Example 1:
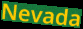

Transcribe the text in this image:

Nevada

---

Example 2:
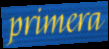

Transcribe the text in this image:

primera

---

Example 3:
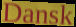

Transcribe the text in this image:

Dansk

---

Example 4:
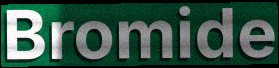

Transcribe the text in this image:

Bromide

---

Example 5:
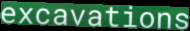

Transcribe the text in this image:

excavations